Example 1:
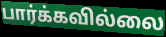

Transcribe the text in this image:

பார்க்கவில்லை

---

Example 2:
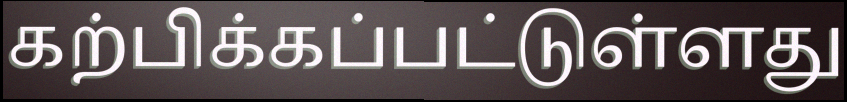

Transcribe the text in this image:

கற்பிக்கப்பட்டுள்ளது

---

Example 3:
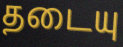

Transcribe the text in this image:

தடையு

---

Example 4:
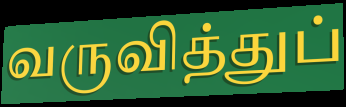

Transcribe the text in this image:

வருவித்துப்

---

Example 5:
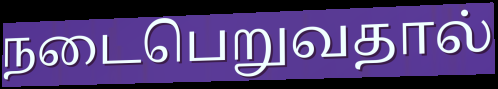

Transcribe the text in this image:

நடைபெறுவதால்